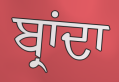
ਬ੍ਰਾਂਦਾ